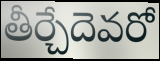
తీర్చేదెవరో